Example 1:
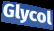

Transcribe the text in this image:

Glycol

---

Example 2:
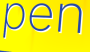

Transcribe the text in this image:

pen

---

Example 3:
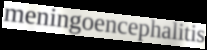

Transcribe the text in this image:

meningoencephalitis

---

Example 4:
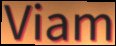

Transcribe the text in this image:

Viam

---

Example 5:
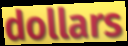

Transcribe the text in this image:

dollars